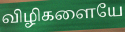
விழிகளையே